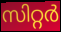
സിറ്റർ